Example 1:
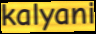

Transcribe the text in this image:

kalyani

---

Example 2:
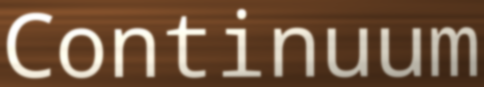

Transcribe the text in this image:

Continuum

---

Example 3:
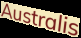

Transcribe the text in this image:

Australis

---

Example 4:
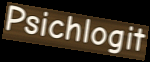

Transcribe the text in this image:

Psichlogit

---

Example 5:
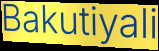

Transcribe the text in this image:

Bakutiyali